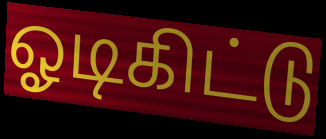
ஓடிகிட்டு